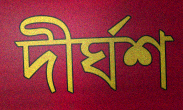
দীর্ঘশ